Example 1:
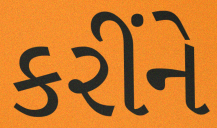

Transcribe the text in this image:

કરીંને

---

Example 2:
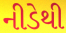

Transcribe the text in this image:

નીડેથી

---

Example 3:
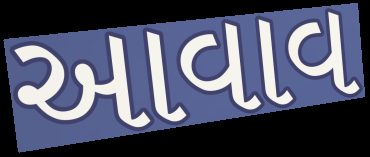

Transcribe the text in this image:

આવાવ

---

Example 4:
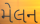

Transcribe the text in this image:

મેલન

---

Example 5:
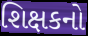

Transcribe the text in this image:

શિક્ષકનો